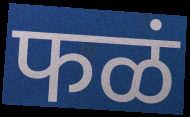
फळं